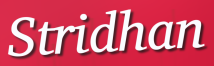
Stridhan